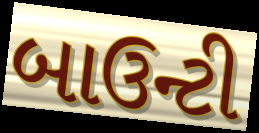
બાઉન્ટી